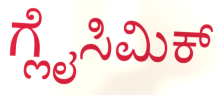
ಗ್ಲೈಸಿಮಿಕ್